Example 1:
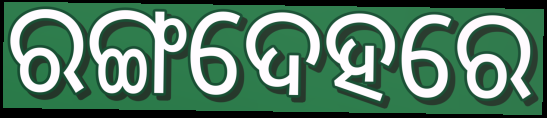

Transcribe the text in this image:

ରଙ୍ଗଦେହରେ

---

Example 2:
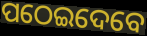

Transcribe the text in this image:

ପଠେଇଦେବେ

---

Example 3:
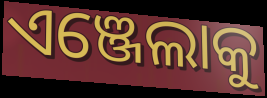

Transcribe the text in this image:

ଏଞ୍ଜେଲାକୁ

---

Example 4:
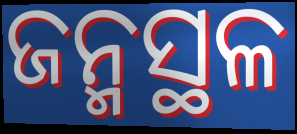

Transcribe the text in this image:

ଜନ୍ମସ୍ଥଳ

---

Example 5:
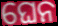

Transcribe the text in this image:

ଘେନ